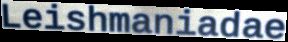
Leishmaniadae